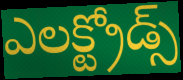
ఎలక్ట్రోడ్స్